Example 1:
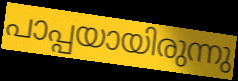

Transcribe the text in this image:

പാപ്പയായിരുന്നു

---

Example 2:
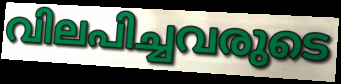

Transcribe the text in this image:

വിലപിച്ചവരുടെ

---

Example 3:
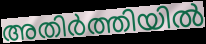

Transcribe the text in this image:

അതിർത്തിയിൽ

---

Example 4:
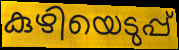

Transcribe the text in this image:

കുഴിയെടുപ്പ്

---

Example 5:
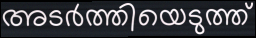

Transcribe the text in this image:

അടർത്തിയെടുത്ത്